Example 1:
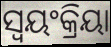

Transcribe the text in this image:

ସ୍ବୟଂକ୍ରିୟା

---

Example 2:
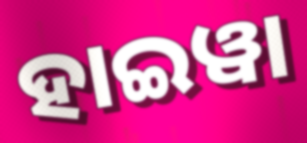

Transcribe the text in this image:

ହାଇୱା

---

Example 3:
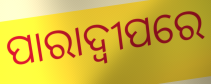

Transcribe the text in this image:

ପାରାଦ୍ବୀପରେ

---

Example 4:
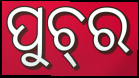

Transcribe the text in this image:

ପୁଚ୍‍ର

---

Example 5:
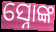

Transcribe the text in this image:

ସ୍ନୋଙ୍କ